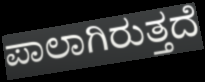
ಪಾಲಾಗಿರುತ್ತದೆ